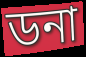
ডনা